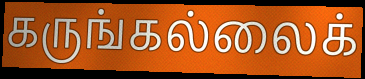
கருங்கல்லைக்